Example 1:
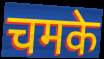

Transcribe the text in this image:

चमके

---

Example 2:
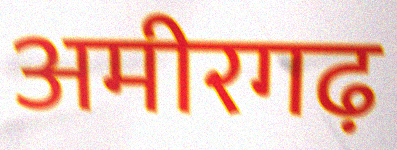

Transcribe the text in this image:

अमीरगढ़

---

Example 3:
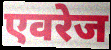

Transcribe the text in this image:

एवरेज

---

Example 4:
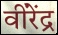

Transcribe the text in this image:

वींरेंद्र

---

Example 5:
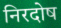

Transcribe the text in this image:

निरदोष